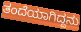
ತಂದೆಯಾಗಿದ್ದನು